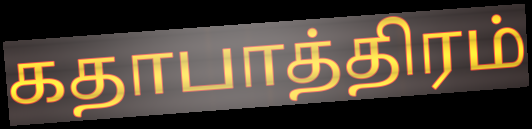
கதாபாத்திரம்